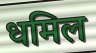
धमिल